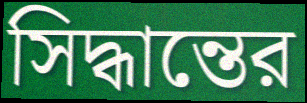
সিদ্ধান্তের